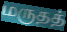
மருதத்